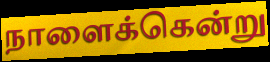
நாளைக்கென்று